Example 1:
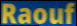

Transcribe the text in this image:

Raouf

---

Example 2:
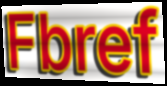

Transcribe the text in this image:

Fbref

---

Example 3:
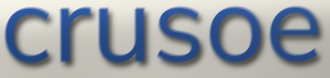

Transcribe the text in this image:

crusoe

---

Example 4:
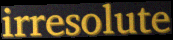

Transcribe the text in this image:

irresolute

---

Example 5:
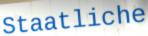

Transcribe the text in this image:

Staatliche